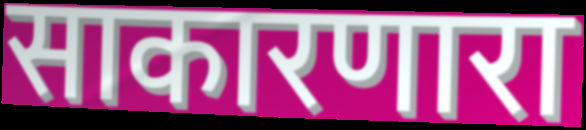
साकारणारा